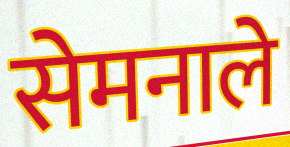
सेमनाले